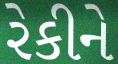
રેકીને